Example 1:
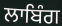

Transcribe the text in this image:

ਲਾਬਿੰਗ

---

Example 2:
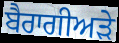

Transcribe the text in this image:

ਬੈਰਾਗੀਅੜੇ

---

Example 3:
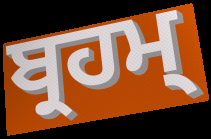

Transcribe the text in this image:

ਬ੍ਰਹਮ੍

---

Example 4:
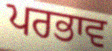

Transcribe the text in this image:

ਪਰਭਾਵ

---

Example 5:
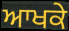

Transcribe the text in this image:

ਆਖਕੇ